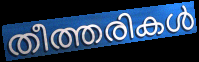
തീത്തരികൾ